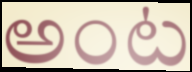
అంట